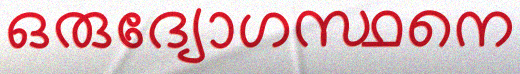
ഒരുദ്യോഗസ്ഥനെ